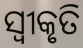
ସ୍ୱୀକୃତି